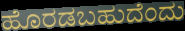
ಹೊರಡಬಹುದೆಂದು